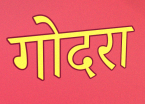
गोदरा